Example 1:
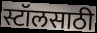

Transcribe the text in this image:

स्टॉलसाठी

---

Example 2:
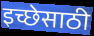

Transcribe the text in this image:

इच्छेसाठी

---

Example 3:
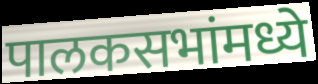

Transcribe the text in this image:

पालकसभांमध्ये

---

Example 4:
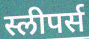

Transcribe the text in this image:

स्लीपर्स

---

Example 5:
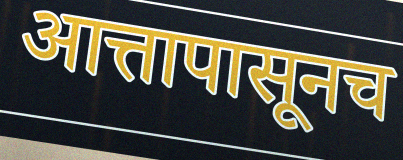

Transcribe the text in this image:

आत्तापासूनच